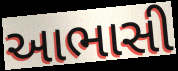
આભાસી